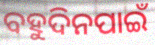
ବହୁଦିନପାଇଁ